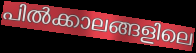
പിൽക്കാലങ്ങളിലെ